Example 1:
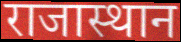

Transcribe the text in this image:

राजास्थान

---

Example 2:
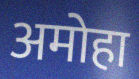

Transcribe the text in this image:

अमोहा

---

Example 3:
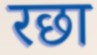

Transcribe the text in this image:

रछा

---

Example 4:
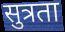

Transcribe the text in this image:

सुत्रता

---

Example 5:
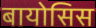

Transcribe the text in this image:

बायोसिस